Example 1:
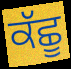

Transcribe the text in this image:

ਕੱਛੂ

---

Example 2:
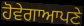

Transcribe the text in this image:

ਹੋਵੇਗਾਆਪਣੇ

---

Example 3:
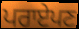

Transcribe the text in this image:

ਪਰਾਏਪਣ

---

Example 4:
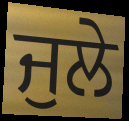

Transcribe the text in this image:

ਜੁਲੇ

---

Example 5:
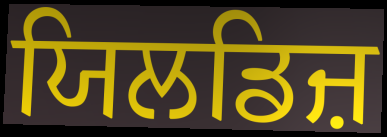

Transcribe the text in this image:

ਯਿਲਡਿਜ਼